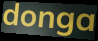
donga